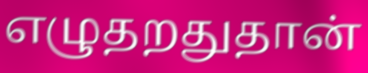
எழுதறதுதான்